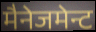
मैनेजमेन्ट